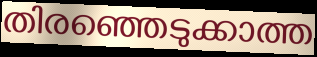
തിരഞ്ഞെടുക്കാത്ത